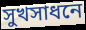
সুখসাধনে